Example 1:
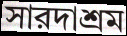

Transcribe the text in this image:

সারদাশ্রম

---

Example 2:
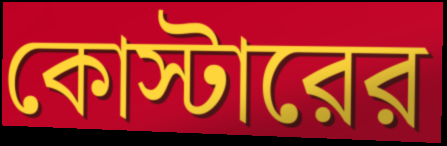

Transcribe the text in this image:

কোস্টারের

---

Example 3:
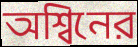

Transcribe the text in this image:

অশ্বিনের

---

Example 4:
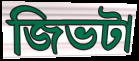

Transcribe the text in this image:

জিভটা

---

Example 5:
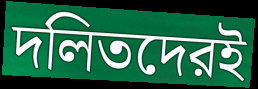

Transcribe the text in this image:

দলিতদেরই